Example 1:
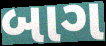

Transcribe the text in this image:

બાગ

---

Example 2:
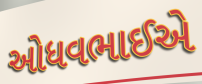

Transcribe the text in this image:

ઓધવભાઈએ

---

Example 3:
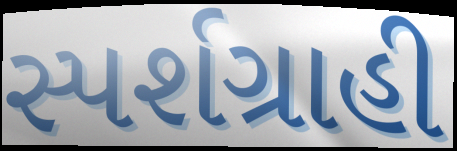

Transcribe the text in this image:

સ્પર્શગ્રાહી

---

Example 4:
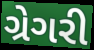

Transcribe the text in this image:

ગ્રેગરી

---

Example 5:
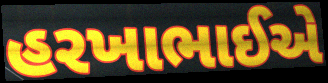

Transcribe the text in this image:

હરખાભાઈએ